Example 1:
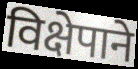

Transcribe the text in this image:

विक्षेपाने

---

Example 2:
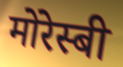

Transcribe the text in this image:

मोरेस्बी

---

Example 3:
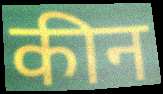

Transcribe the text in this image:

कीन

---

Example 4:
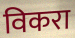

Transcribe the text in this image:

विकरा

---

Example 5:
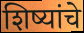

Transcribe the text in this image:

शिष्यांचे